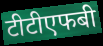
टीटीएफबी